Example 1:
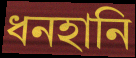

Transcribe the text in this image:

ধনহানি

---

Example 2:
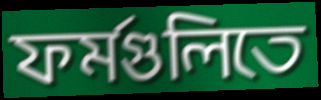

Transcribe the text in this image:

ফর্মগুলিতে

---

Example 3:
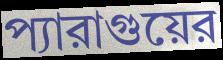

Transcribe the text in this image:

প্যারাগুয়ের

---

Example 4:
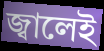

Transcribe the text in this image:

জ্বালেই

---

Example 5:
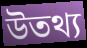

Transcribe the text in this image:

উতথ্য